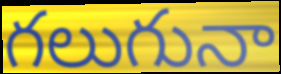
గలుగునా